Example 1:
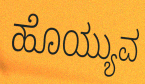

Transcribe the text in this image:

ಹೊಯ್ಯುವ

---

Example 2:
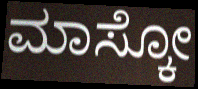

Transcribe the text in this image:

ಮಾಸ್ಕೋ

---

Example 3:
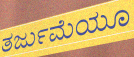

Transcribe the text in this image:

ತರ್ಜುಮೆಯೂ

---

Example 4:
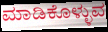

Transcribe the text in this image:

ಮಾಡಿಕೊಳ್ಳುವ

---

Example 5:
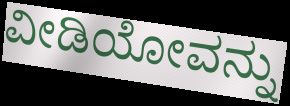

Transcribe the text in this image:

ವೀಡಿಯೋವನ್ನು